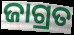
ଜାଗ୍ରତ